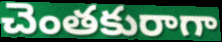
చెంతకురాగా